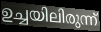
ഉച്ചയിലിരുന്ന്